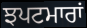
ਝਪਟਮਾਰਾਂ